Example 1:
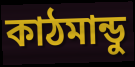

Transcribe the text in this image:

কাঠমান্ডু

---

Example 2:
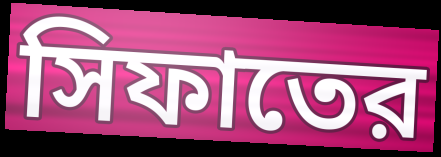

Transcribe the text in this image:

সিফাতের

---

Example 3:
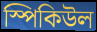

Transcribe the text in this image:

স্পিকিউল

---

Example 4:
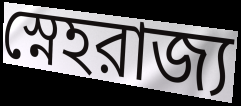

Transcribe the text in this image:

স্নেহরাজ্য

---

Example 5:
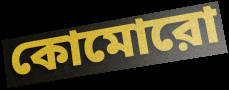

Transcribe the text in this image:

কোমোরো